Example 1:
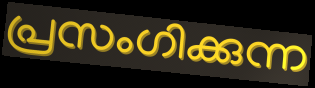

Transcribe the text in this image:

പ്രസംഗിക്കുന്ന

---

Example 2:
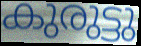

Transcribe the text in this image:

കുരുട്ടു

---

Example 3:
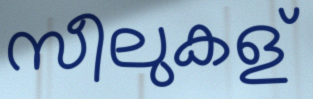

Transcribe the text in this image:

സീലുകള്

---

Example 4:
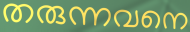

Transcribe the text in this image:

തരുന്നവനെ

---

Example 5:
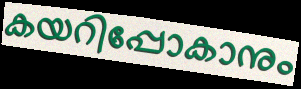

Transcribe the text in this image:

കയറിപ്പോകാനും